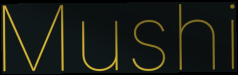
Mushi